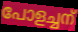
പോളച്ചന്